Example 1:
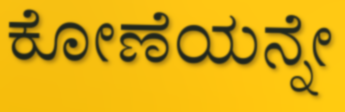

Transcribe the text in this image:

ಕೋಣೆಯನ್ನೇ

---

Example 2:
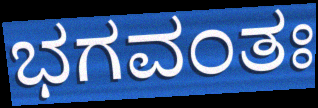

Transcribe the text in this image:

ಭಗವಂತಃ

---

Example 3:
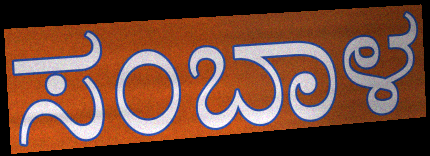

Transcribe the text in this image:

ಸಂಬಾಳ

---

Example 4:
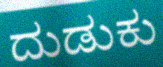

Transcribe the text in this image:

ದುಡುಕು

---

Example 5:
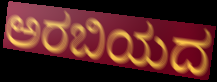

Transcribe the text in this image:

ಅರಬಿಯದ